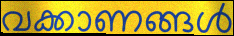
വക്കാണങ്ങൾ